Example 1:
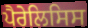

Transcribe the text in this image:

ਪੈਰੇਲਿਸਿਸ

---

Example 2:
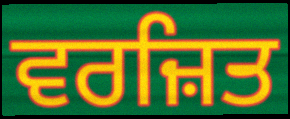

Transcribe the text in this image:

ਵਰਜ਼ਿਤ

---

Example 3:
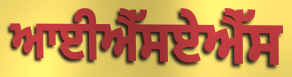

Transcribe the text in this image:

ਆਈਐੱਸਏਐੱਸ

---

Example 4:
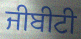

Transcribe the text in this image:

ਜੀਬੀਟੀ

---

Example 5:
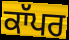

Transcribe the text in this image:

ਕਾੱਪਰ